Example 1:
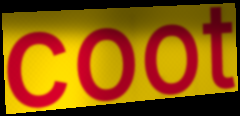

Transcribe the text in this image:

coot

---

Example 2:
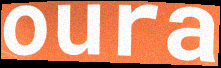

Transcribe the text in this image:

oura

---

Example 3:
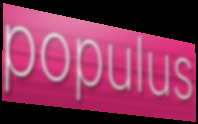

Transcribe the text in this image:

populus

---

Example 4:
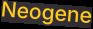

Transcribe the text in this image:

Neogene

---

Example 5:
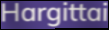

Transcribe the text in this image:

Hargittai